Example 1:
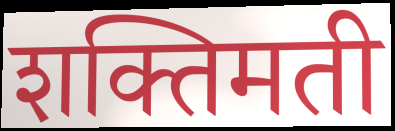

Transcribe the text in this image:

शक्तिमती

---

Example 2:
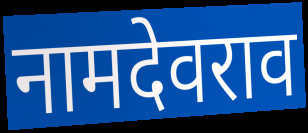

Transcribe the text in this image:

नामदेवराव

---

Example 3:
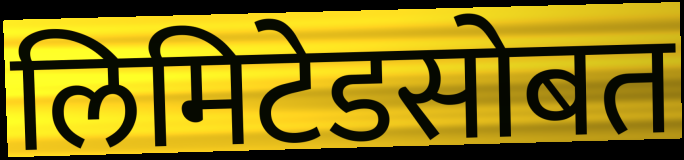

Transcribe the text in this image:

लिमिटेडसोबत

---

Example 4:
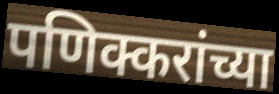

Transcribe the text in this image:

पणिक्करांच्या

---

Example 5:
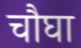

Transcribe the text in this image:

चौघा